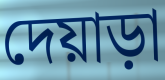
দেয়াড়া